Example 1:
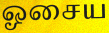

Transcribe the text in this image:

ஓசைய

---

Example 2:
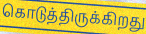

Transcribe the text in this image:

கொடுத்திருக்கிறது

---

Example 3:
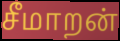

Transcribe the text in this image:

சீமாறன்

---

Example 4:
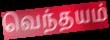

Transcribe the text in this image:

வெந்தயம்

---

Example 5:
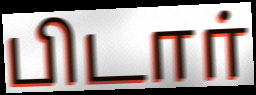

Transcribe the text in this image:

பிடார்